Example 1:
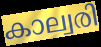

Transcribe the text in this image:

കാല്വരി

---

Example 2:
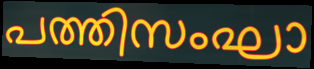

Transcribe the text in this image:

പത്തിസംഘാ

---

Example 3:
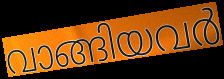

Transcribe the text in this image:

വാങ്ങിയവർ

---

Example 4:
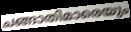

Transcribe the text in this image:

ചങ്ങാതിമാരെയും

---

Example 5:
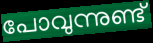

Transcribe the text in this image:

പോവുന്നുണ്ട്